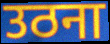
उठना